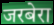
जरबेरा